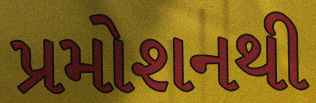
પ્રમોશનથી